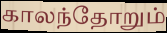
காலந்தோறும்